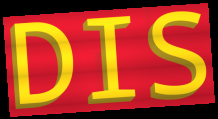
DIS